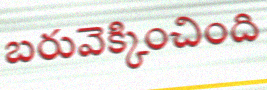
బరువెక్కించింది